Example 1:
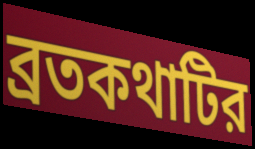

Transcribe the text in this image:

ব্রতকথাটির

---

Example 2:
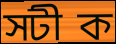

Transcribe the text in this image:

সটীক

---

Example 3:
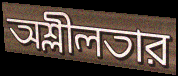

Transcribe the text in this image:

অশ্লীলতার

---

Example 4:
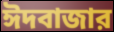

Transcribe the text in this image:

ঈদবাজার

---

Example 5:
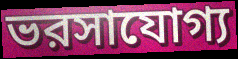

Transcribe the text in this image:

ভরসাযোগ্য